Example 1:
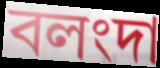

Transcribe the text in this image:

বলংদা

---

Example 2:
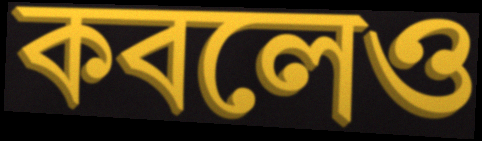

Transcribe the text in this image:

কবলেও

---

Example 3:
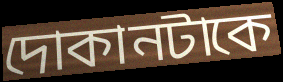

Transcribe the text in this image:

দোকানটাকে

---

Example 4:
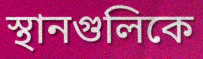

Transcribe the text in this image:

স্থানগুলিকে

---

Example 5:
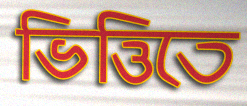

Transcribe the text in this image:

ভিত্তিতে